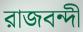
রাজবন্দী